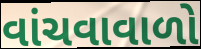
વાંચવાવાળો